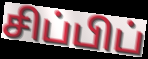
சிப்பிப்